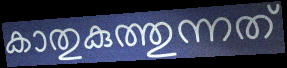
കാതുകുത്തുന്നത്